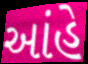
આંહે